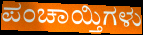
ಪಂಚಾಯ್ತಿಗಳು